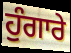
ਹੁੰਗਾਰੇ